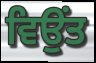
ਵਿਉਂਤ